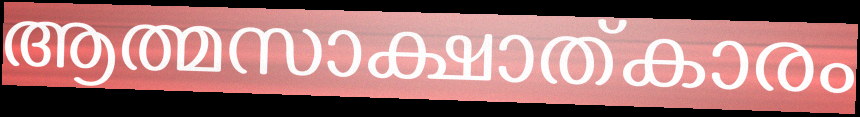
ആത്മസാക്ഷാത്കാരം